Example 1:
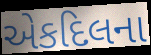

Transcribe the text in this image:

એકદિલના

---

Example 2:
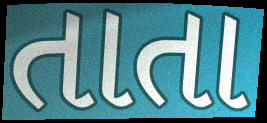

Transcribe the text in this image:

તાતા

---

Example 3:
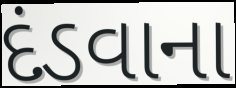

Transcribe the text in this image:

દંડવાના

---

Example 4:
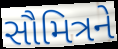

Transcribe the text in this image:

સૌમિત્રને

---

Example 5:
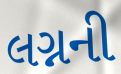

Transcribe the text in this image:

લગ્નની